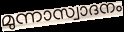
മുന്നാസ്വാദനം